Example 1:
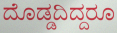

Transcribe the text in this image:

ದೊಡ್ಡದಿದ್ದರೂ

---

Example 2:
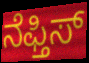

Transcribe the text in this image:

ನೆಫ್ತಿಸ್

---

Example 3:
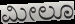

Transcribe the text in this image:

ಮೀಲೂ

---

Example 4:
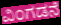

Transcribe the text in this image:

ವಿಂಗಡನೆ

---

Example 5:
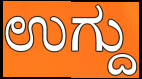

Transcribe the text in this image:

ಉಗ್ದು